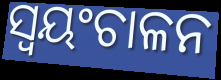
ସ୍ବୟଂଚାଳନ